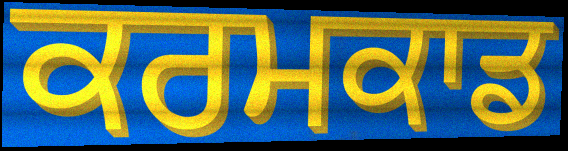
ਕਰਮਕਾਡ